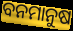
ବନମାନୁଷ